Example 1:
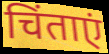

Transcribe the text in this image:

चिंताएं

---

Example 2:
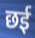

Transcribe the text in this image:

छई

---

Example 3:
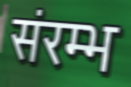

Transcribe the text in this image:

संरम्भ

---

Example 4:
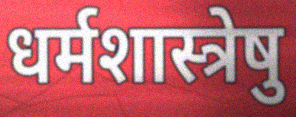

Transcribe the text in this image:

धर्मशास्त्रेषु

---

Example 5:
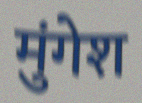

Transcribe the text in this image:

मुंगेश